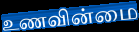
உணவின்மை